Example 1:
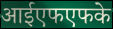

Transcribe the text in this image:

आईएफएफके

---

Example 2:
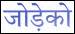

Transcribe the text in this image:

जोड़ेको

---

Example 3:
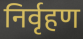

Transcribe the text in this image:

निर्वृहण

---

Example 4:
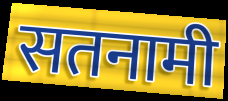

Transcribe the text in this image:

सतनामी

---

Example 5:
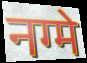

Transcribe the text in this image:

नग्मे